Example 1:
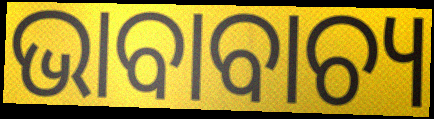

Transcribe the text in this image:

ଭାବାବାଚ୍ୟ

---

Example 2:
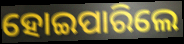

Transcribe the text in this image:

ହୋଇପାରିଲେ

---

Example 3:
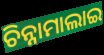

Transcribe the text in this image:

ଚିନ୍ନାମାଲାଇ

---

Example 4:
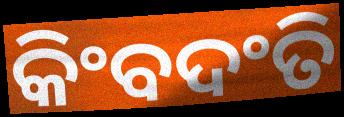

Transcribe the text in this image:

କିଂବଦଂତି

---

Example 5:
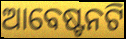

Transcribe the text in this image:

ଆବେଷ୍ଟନଟି